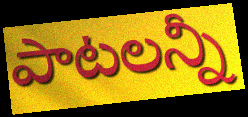
పాటలన్నీ